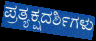
ಪ್ರತ್ಯಕ್ಷದರ್ಶಿಗಳು